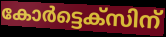
കോർട്ടെക്സിന്